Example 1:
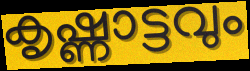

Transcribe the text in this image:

കൃഷ്ണാട്ടവും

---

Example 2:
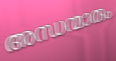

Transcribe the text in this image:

അന്ധന്മാരും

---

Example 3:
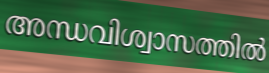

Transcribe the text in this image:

അന്ധവിശ്വാസത്തിൽ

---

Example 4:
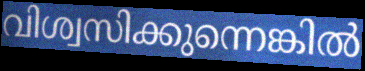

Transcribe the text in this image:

വിശ്വസിക്കുന്നെങ്കിൽ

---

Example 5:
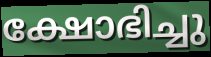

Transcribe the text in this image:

ക്ഷോഭിച്ചു